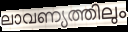
ലാവണ്യത്തിലും